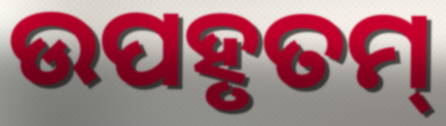
ଉପହୃତମ୍